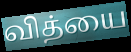
வித்யை